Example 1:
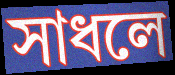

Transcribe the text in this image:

সাধলে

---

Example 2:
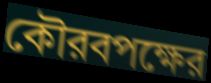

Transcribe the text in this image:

কৌরবপক্ষের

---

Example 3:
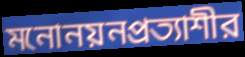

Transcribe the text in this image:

মনোনয়নপ্রত্যাশীর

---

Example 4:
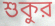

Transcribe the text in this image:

শুকুর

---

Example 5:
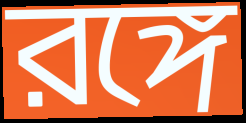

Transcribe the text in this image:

রঙ্গে